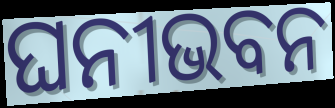
ଘନୀଭବନ